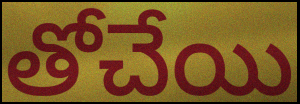
తోచేయి